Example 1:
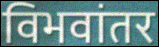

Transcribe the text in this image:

विभवांतर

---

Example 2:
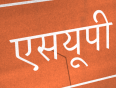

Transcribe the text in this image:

एसयूपी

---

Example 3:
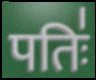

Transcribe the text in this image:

पतिः॑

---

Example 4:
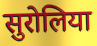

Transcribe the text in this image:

सुरोलिया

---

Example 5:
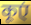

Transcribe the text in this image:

कूएं